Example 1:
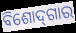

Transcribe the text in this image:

ବିଶୋଦ୍‌ଗାର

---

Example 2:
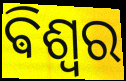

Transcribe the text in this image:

ଵିଶ୍ୱର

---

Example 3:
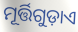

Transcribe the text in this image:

ମୂର୍ତ୍ତିଗୁଡ଼ାଏ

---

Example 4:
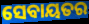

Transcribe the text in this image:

ସେବାୟତର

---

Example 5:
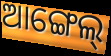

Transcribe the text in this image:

ଆଙ୍ଗେଲ୍